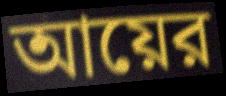
আয়ের